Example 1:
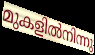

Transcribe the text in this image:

മുകളിൽനിന്നു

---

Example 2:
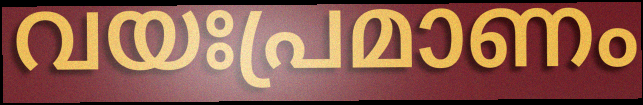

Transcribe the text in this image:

വയഃപ്രമാണം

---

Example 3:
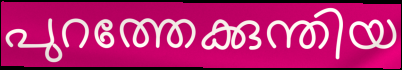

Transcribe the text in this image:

പുറത്തേക്കുന്തിയ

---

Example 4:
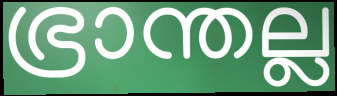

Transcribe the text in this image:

ഭ്രാന്തല്ല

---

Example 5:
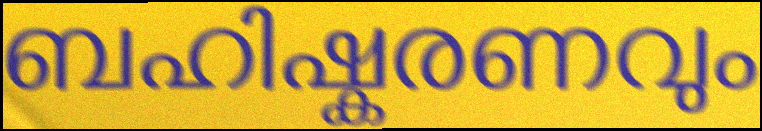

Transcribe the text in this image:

ബഹിഷ്കരണവും